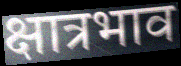
क्षात्रभाव